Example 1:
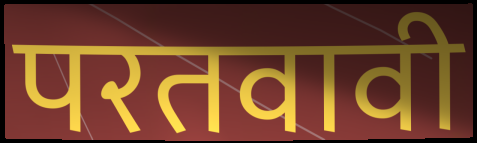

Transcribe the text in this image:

परतवावी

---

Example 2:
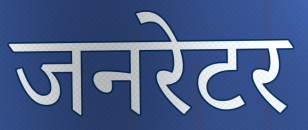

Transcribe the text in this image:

जनरेटर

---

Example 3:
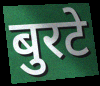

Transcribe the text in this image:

बुरटे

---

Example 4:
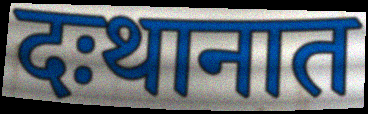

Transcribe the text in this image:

दःथानात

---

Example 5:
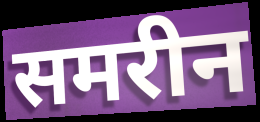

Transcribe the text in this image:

समरीन